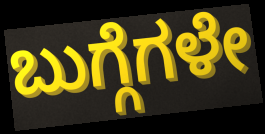
ಬುಗ್ಗೆಗಳೇ